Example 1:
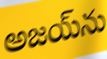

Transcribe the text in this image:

అజయ్‌ను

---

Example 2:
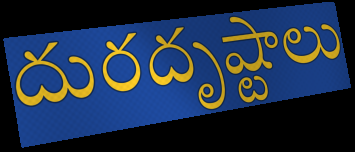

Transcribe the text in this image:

దురదృష్టాలు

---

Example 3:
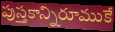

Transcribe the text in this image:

పుస్తకాన్నిరూముకే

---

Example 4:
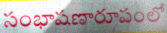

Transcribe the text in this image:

సంభాషణారూపంలో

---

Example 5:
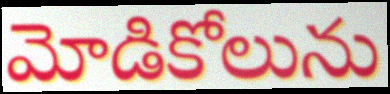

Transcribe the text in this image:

మోడికోలును